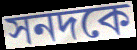
সনদকে